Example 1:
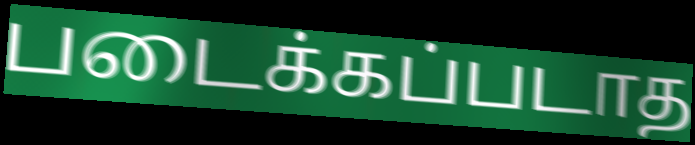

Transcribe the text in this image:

படைக்கப்படாத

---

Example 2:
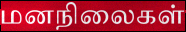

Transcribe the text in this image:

மனநிலைகள்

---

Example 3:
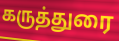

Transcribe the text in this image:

கருத்துரை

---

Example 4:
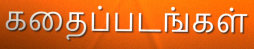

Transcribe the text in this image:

கதைப்படங்கள்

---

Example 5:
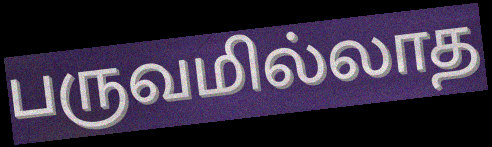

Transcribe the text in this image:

பருவமில்லாத